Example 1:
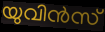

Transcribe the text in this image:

യുവിൻസ്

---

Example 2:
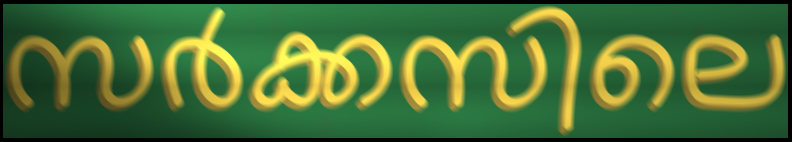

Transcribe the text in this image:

സർക്കസിലെ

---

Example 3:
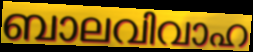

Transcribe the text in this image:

ബാലവിവാഹ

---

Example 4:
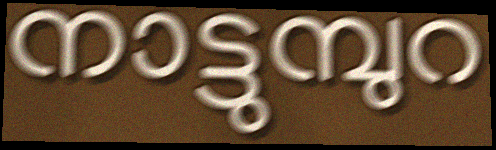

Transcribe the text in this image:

നാട്ടുമ്പുറ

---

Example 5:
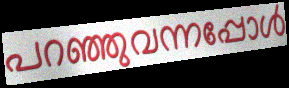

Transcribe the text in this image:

പറഞ്ഞുവന്നപ്പോൾ